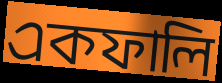
একফালি